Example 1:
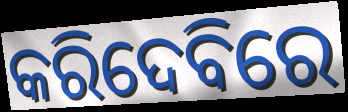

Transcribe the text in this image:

କରିଦେବିରେ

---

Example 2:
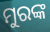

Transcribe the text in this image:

ମୁରଙ୍କ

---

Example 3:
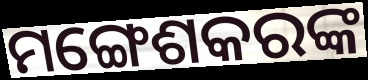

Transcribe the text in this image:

ମଙ୍ଗେଶକରଙ୍କ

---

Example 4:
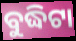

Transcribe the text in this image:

ବୁଦ୍ଧିଟା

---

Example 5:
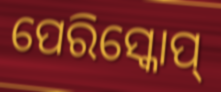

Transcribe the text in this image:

ପେରିସ୍କୋପ୍